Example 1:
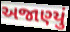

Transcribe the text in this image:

અજાણ્યું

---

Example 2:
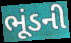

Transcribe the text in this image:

ભૂંડની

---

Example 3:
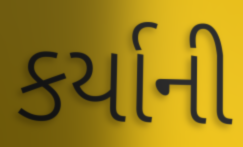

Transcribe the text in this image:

કર્યાની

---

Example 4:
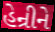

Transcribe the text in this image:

હેન્રીને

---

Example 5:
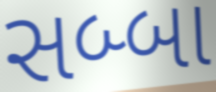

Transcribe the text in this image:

સબ્બા